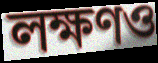
লক্ষণও